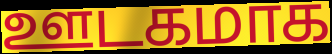
ஊடகமாக